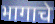
भागाचे